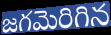
జగమెరిగిన